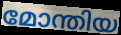
മോന്തിയ